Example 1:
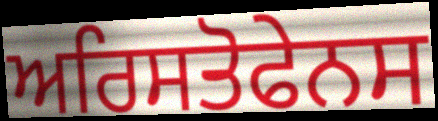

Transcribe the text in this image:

ਅਰਿਸਤੋਫੇਨਸ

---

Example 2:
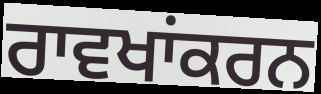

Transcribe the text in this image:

ਰਾਵਖਾਂਕਰਨ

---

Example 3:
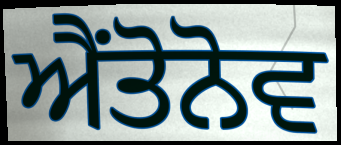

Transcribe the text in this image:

ਐਂਤੋਨੋਵ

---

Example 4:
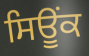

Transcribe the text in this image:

ਸਿਊਂਕ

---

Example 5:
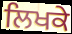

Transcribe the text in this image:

ਲਿਖਕੇ